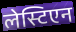
लेस्टिएन